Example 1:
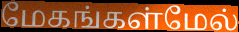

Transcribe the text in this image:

மேகங்கள்மேல்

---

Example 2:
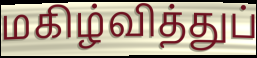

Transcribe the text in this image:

மகிழ்வித்துப்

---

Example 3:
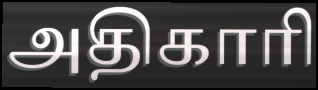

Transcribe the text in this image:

அதிகாரி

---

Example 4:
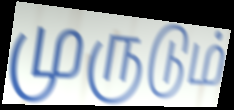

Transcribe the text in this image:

முருடும்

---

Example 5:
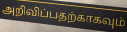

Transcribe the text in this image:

அறிவிப்பதற்காகவும்